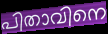
പിതാവിനെ